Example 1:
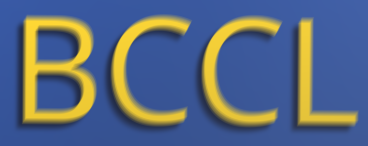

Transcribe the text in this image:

BCCL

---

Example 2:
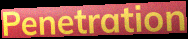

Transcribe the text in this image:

Penetration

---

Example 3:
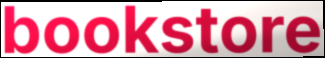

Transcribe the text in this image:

bookstore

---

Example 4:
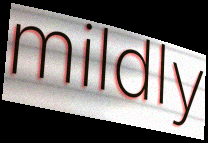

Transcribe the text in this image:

mildly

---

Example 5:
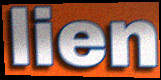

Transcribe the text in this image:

lien